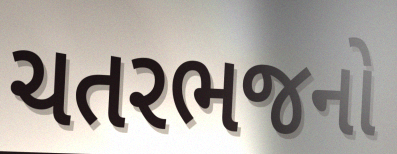
ચતરભજનો